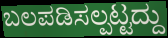
ಬಲಪಡಿಸಲ್ಪಟ್ಟದ್ದು